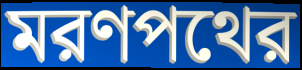
মরণপথের